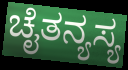
ಚೈತನ್ಯಸ್ಯ